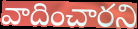
వాదించారని